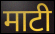
माटी